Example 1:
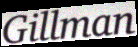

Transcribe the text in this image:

Gillman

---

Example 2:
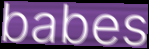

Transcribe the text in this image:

babes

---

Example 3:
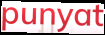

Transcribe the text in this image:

punyat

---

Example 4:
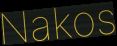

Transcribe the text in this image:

Nakos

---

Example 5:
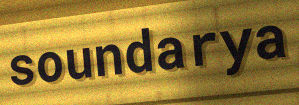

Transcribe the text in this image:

soundarya